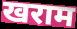
खराम